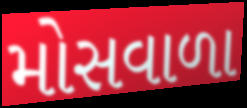
મોસવાળા